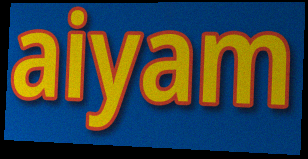
aiyam